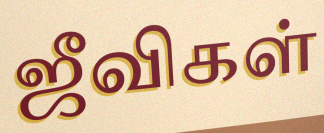
ஜீவிகள்